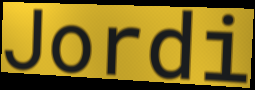
Jordi